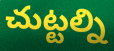
చుట్టల్ని